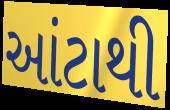
આંટાથી